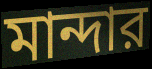
মান্দার